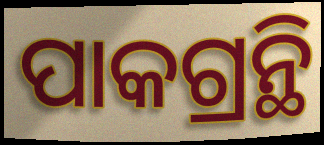
ପାକଗ୍ରନ୍ଥି